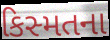
કિસ્મતના